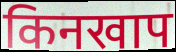
किनखाप